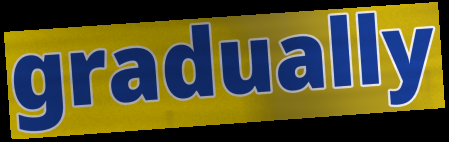
gradually